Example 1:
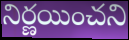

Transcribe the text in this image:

నిర్ణయించని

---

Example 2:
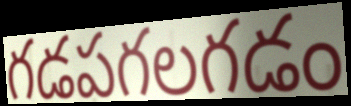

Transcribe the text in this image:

గడపగలగడం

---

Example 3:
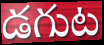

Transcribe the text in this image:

డగుట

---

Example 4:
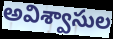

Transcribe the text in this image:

అవిశ్వాసుల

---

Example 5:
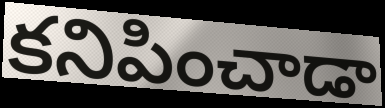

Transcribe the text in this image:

కనిపించాడా